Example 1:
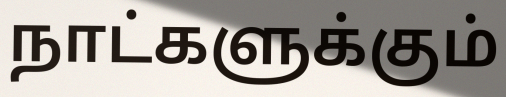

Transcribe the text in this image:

நாட்களுக்கும்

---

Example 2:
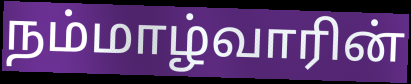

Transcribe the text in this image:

நம்மாழ்வாரின்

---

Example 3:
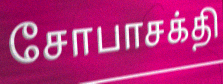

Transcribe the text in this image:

சோபாசக்தி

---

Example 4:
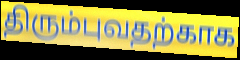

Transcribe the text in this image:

திரும்புவதற்காக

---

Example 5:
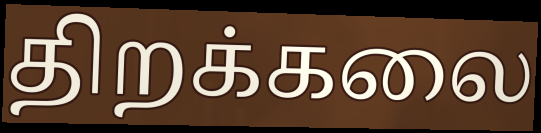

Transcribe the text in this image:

திறக்கலை